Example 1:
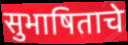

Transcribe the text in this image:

सुभाषिताचे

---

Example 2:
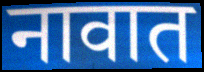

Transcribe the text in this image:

नावात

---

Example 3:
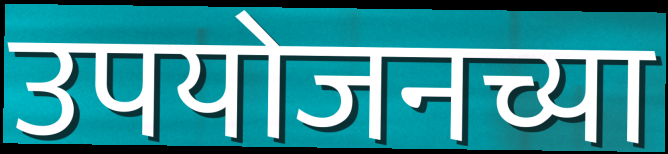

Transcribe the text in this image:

उपयोजनच्या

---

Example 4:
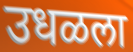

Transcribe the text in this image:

उधळला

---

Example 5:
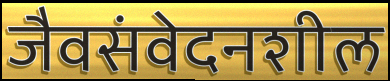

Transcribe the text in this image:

जैवसंवेदनशील